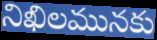
నిఖిలమునకు